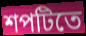
শপটিতে